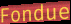
Fondue